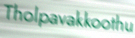
Tholpavakkoothu